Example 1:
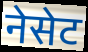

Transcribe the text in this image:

नेसेट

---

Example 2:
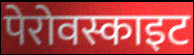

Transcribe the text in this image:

पेरोवस्काइट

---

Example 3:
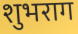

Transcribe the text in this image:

शुभराग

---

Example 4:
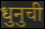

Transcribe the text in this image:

धुनुची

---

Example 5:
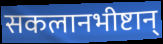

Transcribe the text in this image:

सकलानभीष्टान्